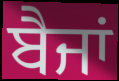
ਬੈਜਾਂ